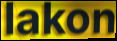
lakon